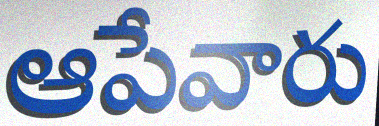
ఆపేవారు